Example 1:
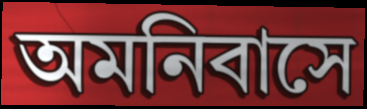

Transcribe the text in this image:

অমনিবাসে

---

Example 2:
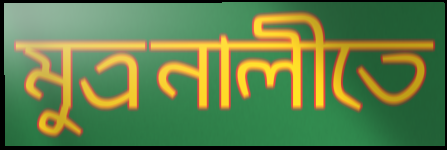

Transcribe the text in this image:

মুত্রনালীতে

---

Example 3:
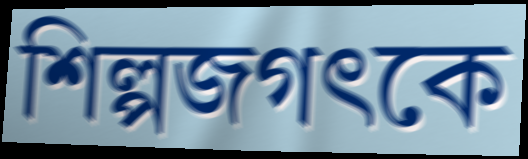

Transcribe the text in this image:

শিল্পজগৎকে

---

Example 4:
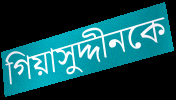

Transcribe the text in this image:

গিয়াসুদ্দীনকে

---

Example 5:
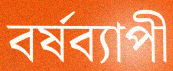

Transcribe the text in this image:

বর্ষব্যাপী